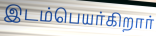
இடம்பெயர்கிறார்